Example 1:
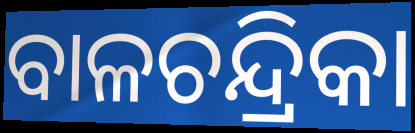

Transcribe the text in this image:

ବାଳଚନ୍ଦ୍ରିକା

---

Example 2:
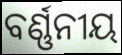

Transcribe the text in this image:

ବର୍ଣ୍ଣନୀୟ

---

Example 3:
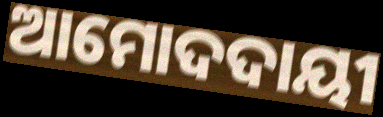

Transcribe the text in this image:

ଆମୋଦଦାୟୀ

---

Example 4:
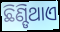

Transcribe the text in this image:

ଛିଣ୍ଡିଥାଏ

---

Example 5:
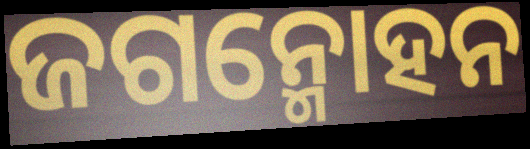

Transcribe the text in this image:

ଜଗନ୍ମୋହନ